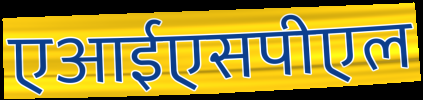
एआईएसपीएल